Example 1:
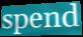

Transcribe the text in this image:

spend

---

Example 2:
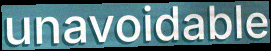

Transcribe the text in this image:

unavoidable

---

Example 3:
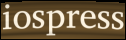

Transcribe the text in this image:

iospress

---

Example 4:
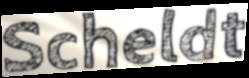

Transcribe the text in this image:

Scheldt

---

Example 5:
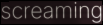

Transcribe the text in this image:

screaming